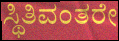
ಸ್ಥಿತಿವಂತರೇ